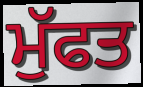
ਮੁੱਫਤ